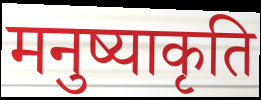
मनुष्याकृति